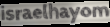
israelhayom